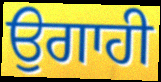
ਉਗਾਹੀ